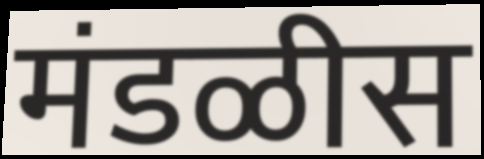
मंडळीस